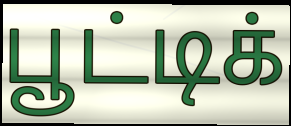
பூட்டிக்